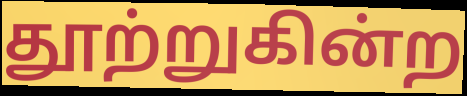
தூற்றுகின்ற